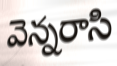
వెన్నరాసి